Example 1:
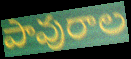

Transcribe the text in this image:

పావురాల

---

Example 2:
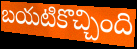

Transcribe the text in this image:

బయటికొచ్చింది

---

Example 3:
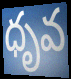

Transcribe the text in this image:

ధృవ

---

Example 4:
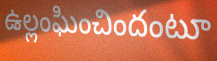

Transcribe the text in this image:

ఉల్లంఘించిందంటూ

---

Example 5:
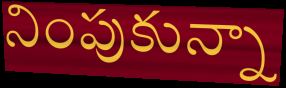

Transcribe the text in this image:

నింపుకున్నా